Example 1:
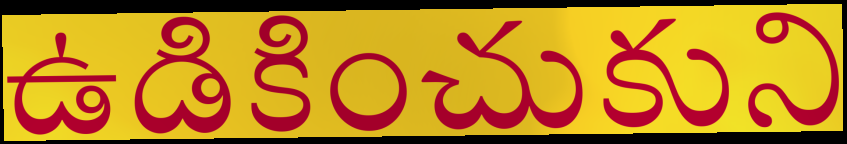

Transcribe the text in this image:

ఉడికించుకుని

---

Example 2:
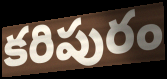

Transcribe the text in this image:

కరిపురం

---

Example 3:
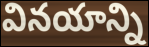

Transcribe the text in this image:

వినయాన్ని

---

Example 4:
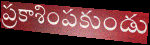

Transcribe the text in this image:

ప్రకాశింపకుండు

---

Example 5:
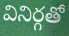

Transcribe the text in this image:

వినిర్గతో